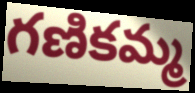
గణికమ్మ